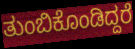
ತುಂಬಿಕೊಂಡಿದ್ದರೆ